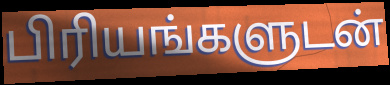
பிரியங்களுடன்